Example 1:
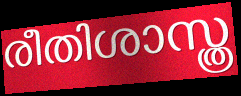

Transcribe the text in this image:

രീതിശാസ്ത്ര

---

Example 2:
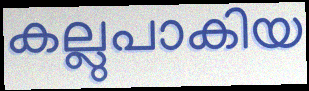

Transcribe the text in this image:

കല്ലുപാകിയ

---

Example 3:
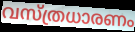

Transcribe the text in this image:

വസ്ത്രധാരണം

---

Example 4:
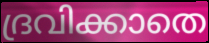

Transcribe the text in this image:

ദ്രവിക്കാതെ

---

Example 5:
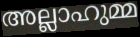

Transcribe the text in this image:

അല്ലാഹുമ്മ